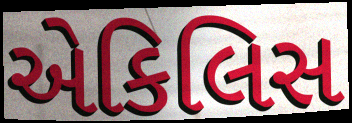
એકિલિસ